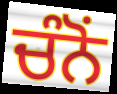
ਚੰਨੋਂ